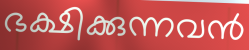
ഭക്ഷിക്കുന്നവൻ